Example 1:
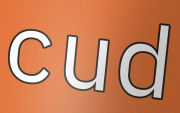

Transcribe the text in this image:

cud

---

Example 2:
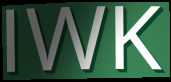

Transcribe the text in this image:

IWK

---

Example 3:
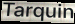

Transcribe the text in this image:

Tarquin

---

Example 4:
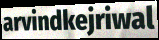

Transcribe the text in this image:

arvindkejriwal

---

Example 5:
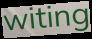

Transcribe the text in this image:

witing